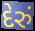
દેરું